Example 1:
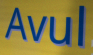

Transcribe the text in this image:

Avul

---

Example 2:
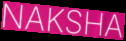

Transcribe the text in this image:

NAKSHA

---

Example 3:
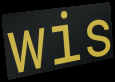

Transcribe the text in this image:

wis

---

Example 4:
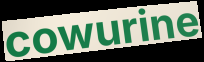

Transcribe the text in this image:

cowurine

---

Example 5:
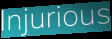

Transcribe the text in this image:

Injurious